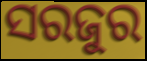
ସରଜୁର